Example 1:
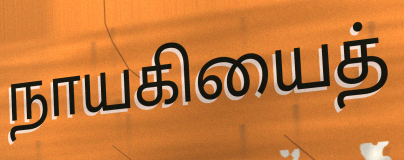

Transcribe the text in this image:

நாயகியைத்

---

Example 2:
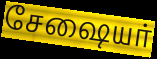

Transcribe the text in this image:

சேஷையர்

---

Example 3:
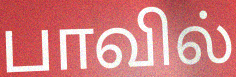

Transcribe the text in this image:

பாவில்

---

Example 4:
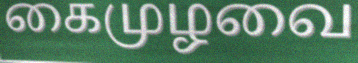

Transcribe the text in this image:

கைமுழவை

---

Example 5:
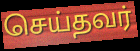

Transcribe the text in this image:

செய்தவர்